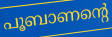
പൂബാണന്റെ